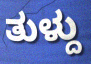
ತುಳ್ದು